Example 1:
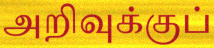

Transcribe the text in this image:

அறிவுக்குப்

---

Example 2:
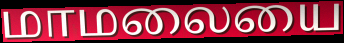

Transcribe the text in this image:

மாமலையை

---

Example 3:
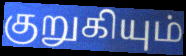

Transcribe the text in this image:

குறுகியும்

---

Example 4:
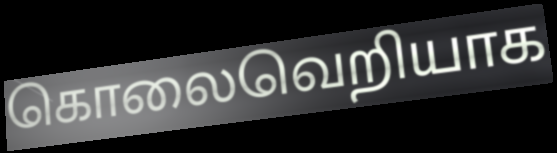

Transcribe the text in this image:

கொலைவெறியாக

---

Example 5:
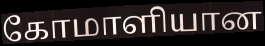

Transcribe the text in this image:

கோமாளியான